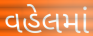
વહેલમાં